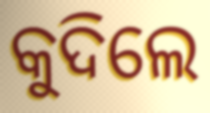
କୁଦିଲେ